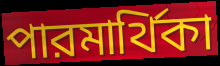
পারমার্থিকা